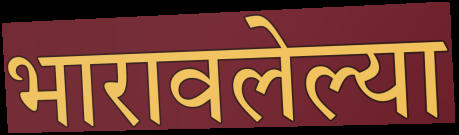
भारावलेल्या